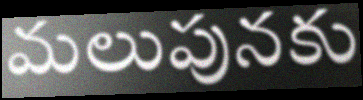
మలుపునకు